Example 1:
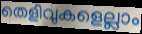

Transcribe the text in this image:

തെളിവുകളെല്ലാം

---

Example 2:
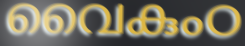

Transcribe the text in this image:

വൈകുംഠ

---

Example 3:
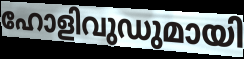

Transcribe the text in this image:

ഹോളിവുഡുമായി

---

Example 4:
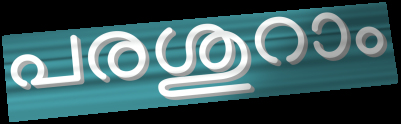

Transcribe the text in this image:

പരശുറാം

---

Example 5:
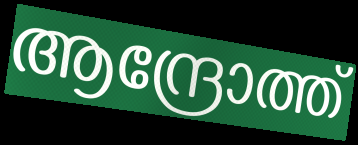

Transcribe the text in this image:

ആന്ദ്രോത്ത്